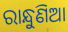
ରାନ୍ଧୁଣିଆ